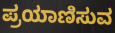
ಪ್ರಯಾಣಿಸುವ